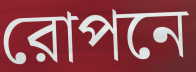
রোপনে